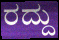
ರದ್ದು